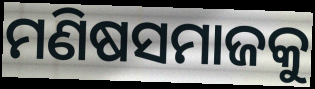
ମଣିଷସମାଜକୁ